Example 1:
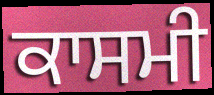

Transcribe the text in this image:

ਕਾਸਮੀ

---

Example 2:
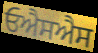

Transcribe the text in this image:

ਓਐਸਐਸ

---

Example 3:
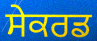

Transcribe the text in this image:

ਸੇਕਰਡ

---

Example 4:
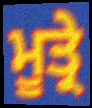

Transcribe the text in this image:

ਮੂਤ੍ਰੇ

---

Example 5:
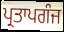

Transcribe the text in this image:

ਪ੍ਰਤਾਪਗੰਜ